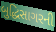
બુદ્ધિસાગરની